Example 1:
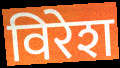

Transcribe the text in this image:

विरेश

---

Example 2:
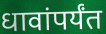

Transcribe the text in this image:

धावांपर्यंत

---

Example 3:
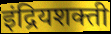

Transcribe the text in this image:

इंद्रियशक्ती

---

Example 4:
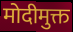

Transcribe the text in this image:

मोदीमुक्त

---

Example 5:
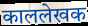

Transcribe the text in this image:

काललेखक